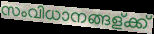
സംവിധാനങ്ങള്ക്ക്